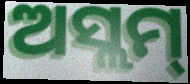
ଅସ୍ଲମ୍